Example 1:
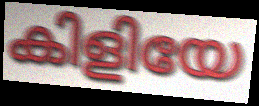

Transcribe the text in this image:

കിളിയേ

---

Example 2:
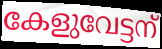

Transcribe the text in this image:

കേളുവേട്ടന്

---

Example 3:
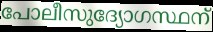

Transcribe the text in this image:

പോലീസുദ്യോഗസ്ഥന്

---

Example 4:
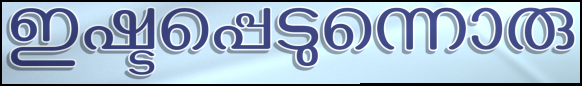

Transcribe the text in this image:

ഇഷ്ടപ്പെടുന്നൊരു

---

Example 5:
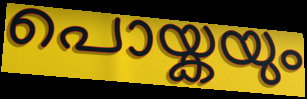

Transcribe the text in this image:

പൊയ്കയും